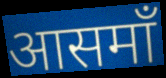
आसमाँ